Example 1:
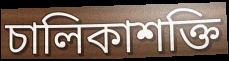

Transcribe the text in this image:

চালিকাশক্তি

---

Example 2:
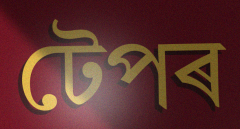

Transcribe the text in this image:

টেপৰ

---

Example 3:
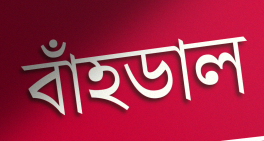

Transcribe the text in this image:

বাঁহডাল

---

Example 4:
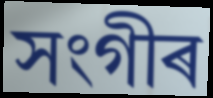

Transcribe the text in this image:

সংগীৰ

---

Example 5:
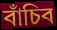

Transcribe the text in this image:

বাঁচিব